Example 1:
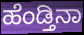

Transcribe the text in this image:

ಹೆಂಡ್ತಿನಾ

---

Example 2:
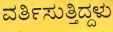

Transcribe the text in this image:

ವರ್ತಿಸುತ್ತಿದ್ದಳು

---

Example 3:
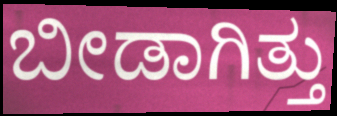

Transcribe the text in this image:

ಬೀಡಾಗಿತ್ತು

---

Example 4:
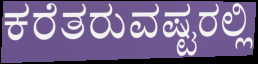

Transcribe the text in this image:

ಕರೆತರುವಷ್ಟರಲ್ಲಿ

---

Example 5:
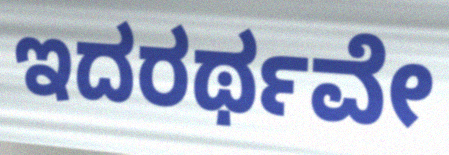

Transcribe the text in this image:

ಇದರರ್ಥವೇ